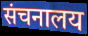
संचनालय